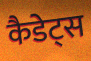
कैडेट्स